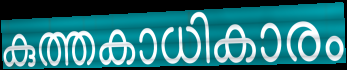
കുത്തകാധികാരം